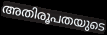
അതിരൂപതയുടെ